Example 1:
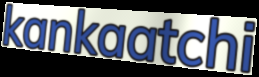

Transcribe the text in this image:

kankaatchi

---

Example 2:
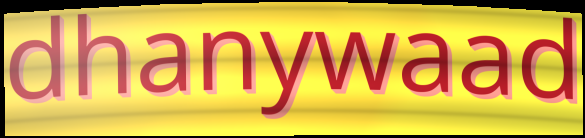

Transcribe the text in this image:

dhanywaad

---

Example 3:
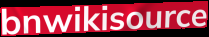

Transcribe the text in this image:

bnwikisource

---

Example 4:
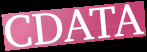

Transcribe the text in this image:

CDATA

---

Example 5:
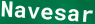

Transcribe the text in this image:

Navesar